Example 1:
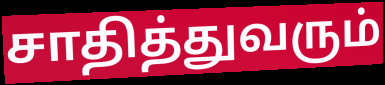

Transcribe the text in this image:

சாதித்துவரும்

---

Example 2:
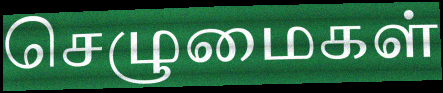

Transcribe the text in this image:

செழுமைகள்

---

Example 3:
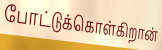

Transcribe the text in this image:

போட்டுக்கொள்கிறான்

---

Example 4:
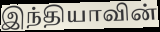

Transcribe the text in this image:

இந்தியாவின்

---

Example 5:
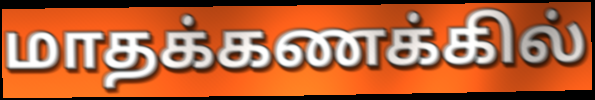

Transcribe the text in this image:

மாதக்கணக்கில்